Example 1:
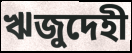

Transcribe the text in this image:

ঋজুদেহী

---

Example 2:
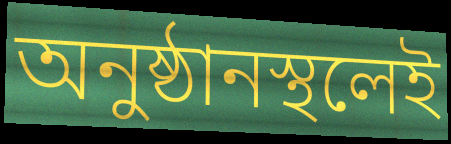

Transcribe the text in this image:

অনুষ্ঠানস্থলেই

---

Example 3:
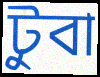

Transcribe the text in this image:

টুবা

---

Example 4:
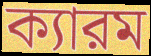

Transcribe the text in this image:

ক্যারম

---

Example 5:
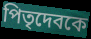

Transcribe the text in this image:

পিতৃদেবকে